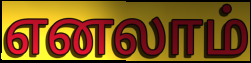
எனலாம்